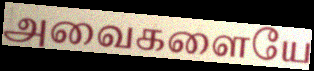
அவைகளையே